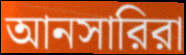
আনসারিরা